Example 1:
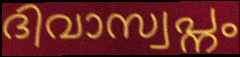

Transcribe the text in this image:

ദിവാസ്വപ്നം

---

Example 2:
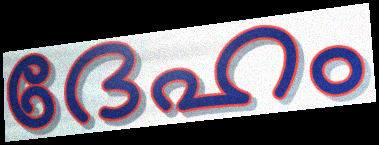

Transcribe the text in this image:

ദേഹം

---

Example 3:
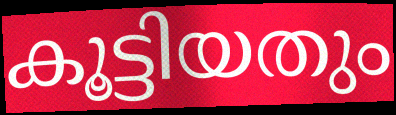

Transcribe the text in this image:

കൂട്ടിയതും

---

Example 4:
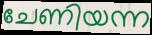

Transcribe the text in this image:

ചേണിയന്ന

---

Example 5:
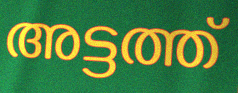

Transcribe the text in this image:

അട്ടത്ത്